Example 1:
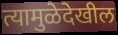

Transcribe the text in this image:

त्यामुळेदेखील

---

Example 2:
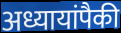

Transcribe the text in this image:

अध्यायांपैकी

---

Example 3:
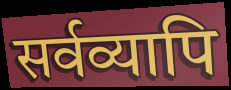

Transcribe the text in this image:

सर्वव्यापि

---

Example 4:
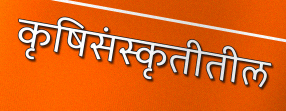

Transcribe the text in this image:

कृषिसंस्कृतीतील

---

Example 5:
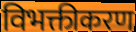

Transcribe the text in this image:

विभक्तीकरण